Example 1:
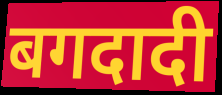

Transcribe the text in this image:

बगदादी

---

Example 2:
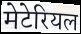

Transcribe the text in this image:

मेटेरियल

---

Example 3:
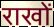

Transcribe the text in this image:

राखों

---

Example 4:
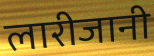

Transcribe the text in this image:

लारीजानी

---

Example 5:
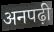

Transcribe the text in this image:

अनपढ़ी